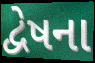
દ્વેષના